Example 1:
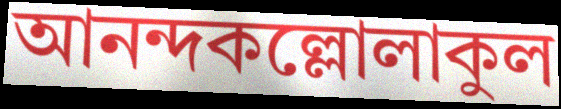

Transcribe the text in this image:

আনন্দকল্লোলাকুল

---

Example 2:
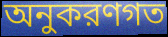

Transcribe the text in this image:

অনুকরণগত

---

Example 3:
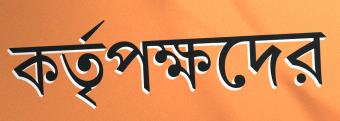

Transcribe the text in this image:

কর্তৃপক্ষদের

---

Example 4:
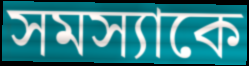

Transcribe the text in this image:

সমস্যাকে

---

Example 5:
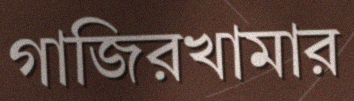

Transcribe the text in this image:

গাজিরখামার